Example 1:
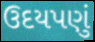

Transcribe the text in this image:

ઉદયપણું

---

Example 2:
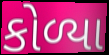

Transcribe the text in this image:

કોળ્યા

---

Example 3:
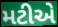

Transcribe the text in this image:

મટીએ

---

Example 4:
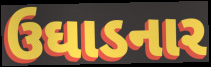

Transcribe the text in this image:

ઉઘાડનાર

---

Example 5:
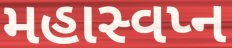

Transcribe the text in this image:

મહાસ્વપ્ન